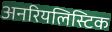
अनरियलिस्टिक